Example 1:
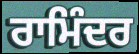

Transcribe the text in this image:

ਰਾਮਿੰਦਰ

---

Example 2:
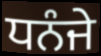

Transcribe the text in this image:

ਧਨੰਜੇ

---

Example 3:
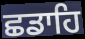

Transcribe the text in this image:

ਛਡਾਹਿ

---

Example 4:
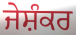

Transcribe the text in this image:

ਜੇਸ਼ੰਕਰ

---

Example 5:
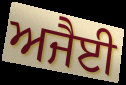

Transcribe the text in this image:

ਅਜੈਈ